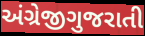
અંગ્રેજીગુજરાતી